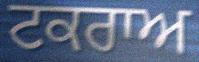
ਟਕਰਾਅ